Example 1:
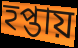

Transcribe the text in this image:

হপ্তায়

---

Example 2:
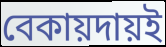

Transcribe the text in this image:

বেকায়দায়ই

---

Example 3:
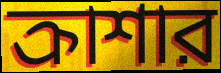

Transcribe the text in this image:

ক্রাশার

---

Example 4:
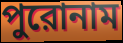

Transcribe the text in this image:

পুরোনাম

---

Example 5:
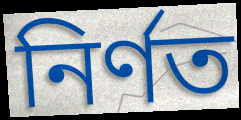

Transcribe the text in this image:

নির্ণত